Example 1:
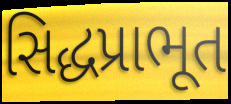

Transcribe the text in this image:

સિદ્ધપ્રાભૂત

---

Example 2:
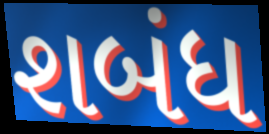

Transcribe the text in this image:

શબંધ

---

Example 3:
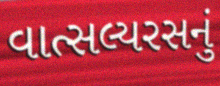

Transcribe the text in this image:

વાત્સલ્યરસનું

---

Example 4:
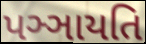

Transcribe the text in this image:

પઞ્ઞાયતિ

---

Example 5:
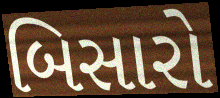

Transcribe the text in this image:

બિસારો